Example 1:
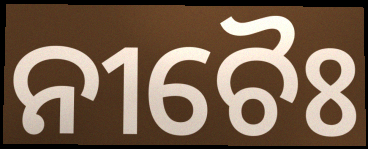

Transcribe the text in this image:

ନୀଚୈଃ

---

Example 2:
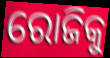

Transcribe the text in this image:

ରୋଜିକୁ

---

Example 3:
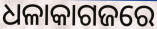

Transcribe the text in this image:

ଧଳାକାଗଜରେ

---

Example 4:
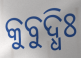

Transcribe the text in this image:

କୁବୁଦ୍ଧିଃ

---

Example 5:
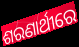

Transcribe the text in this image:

ଶରଣାର୍ଥୀରେ